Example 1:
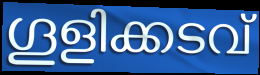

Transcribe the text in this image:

ഗൂളിക്കടവ്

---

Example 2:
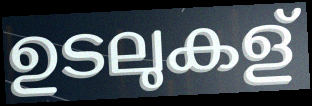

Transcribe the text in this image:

ഉടലുകള്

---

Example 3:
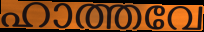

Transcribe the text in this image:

ഹാത്തവേ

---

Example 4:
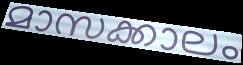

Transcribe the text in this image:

മാസക്കാലം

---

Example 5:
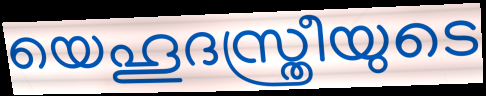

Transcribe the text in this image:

യെഹൂദസ്ത്രീയുടെ